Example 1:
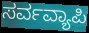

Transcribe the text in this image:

ಸರ್ವವ್ಯಾಪಿ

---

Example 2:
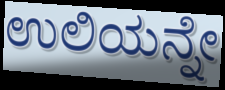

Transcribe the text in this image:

ಉಲಿಯನ್ನೇ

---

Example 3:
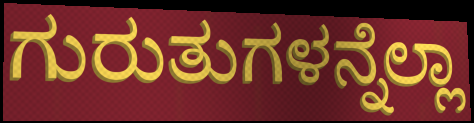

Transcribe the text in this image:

ಗುರುತುಗಳನ್ನೆಲ್ಲಾ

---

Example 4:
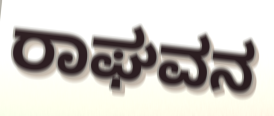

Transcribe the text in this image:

ರಾಘವನ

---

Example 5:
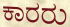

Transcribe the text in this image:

ಕಾರರು